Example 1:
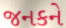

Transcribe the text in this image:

જનકને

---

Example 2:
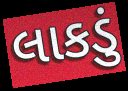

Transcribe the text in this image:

લાકડું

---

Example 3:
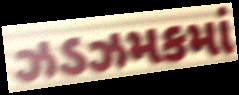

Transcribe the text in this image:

ઝડઝમકમાં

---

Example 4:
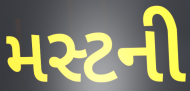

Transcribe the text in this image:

મસ્ટની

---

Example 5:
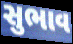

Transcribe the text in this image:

સુભાવ